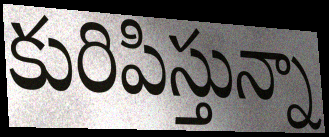
కురిపిస్తున్నా